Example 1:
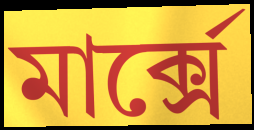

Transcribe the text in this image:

মাৰ্ক্সে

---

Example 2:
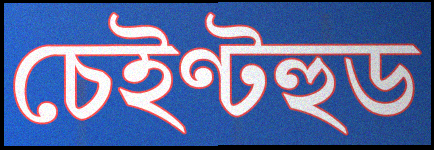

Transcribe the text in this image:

চেইণ্টহুড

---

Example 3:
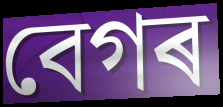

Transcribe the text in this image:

বেগৰ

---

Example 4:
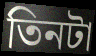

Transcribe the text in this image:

তিনটা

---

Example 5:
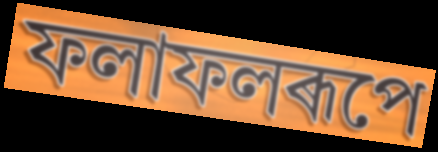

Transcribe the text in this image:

ফলাফলৰূপে